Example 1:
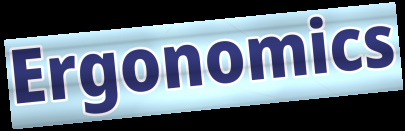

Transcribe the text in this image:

Ergonomics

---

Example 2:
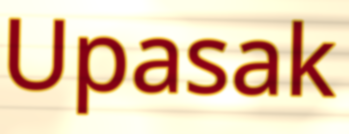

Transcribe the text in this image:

Upasak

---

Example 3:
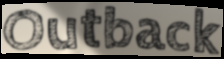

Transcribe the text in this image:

Outback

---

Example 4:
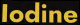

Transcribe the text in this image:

Iodine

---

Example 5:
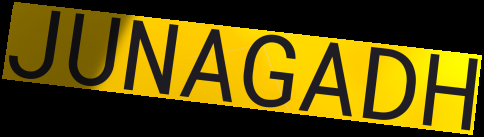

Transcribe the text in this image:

JUNAGADH